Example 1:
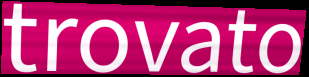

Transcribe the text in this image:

trovato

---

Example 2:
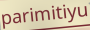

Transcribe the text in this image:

parimitiyu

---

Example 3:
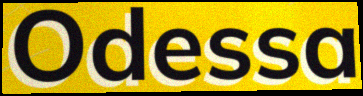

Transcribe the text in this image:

Odessa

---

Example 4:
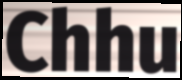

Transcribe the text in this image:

Chhu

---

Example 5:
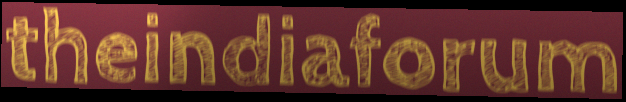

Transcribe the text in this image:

theindiaforum